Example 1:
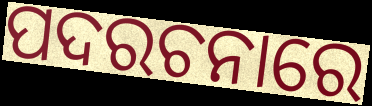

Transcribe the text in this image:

ପଦରଚନାରେ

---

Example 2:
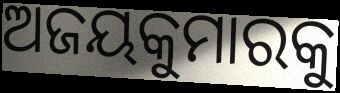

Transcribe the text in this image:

ଅଜୟକୁମାରକୁ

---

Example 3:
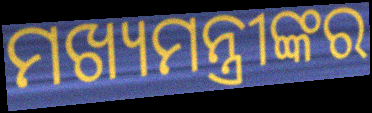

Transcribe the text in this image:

ମଖ୍ୟମନ୍ତ୍ରୀଙ୍କର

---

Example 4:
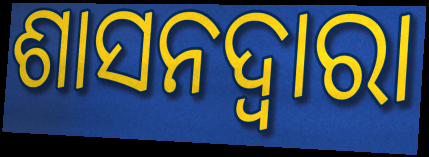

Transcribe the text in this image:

ଶାସନଦ୍ୱାରା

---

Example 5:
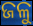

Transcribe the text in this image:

ଜଳୁ